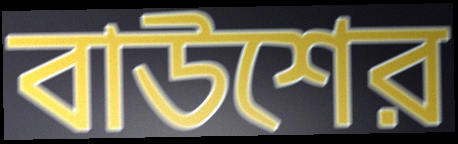
বাউশের